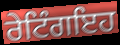
ਰੇਟਿੰਗਇਹ